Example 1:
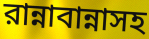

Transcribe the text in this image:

রান্নাবান্নাসহ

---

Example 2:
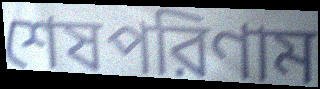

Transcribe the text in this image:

শেষপরিণাম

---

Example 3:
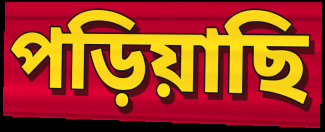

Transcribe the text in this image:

পড়িয়াছি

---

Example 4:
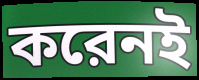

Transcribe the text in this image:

করেনই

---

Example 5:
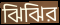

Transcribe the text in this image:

ঝিঝির